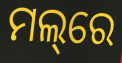
ମଲ୍‌ରେ